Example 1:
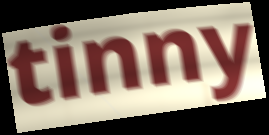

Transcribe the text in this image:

tinny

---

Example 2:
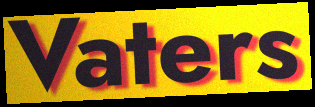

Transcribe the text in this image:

Vaters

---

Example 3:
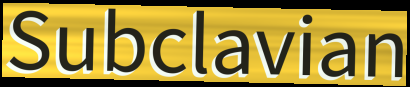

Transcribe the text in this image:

Subclavian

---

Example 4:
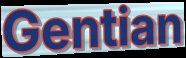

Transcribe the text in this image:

Gentian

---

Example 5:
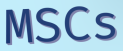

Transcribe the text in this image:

MSCs